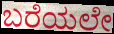
ಬರೆಯಲೇ